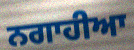
ਨਗਾਹੀਆ